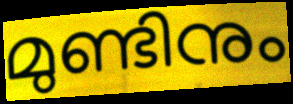
മുണ്ടിനും